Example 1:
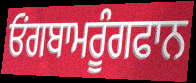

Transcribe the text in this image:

ਓਂਗਬਾਮਰੂੰਗਫਾਨ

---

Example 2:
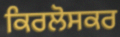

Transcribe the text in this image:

ਕਿਰਲੋਸਕਰ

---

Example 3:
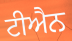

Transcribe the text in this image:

ਟੀਐਨ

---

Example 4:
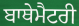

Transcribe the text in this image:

ਬਾਥੇਮੈਟਰੀ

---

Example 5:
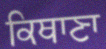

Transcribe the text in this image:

ਕਿਥਾਣਾ